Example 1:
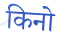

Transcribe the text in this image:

किनो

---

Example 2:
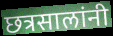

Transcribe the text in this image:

छत्रसालांनी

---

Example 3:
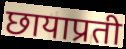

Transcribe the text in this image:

छायाप्रती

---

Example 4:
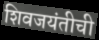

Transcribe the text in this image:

शिवजयंतीची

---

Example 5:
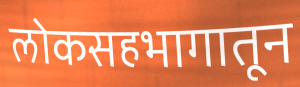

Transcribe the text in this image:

लोकसहभागातून